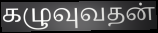
கழுவுவதன்